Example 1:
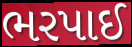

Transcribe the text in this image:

ભરપાઈ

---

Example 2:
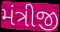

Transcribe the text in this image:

મંત્રીજી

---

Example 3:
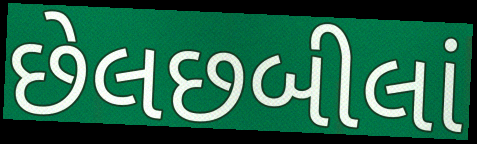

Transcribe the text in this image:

છેલછબીલાં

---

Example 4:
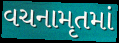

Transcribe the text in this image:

વચનામૃતમાં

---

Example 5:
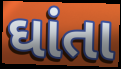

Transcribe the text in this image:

ઘાંતા